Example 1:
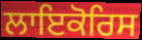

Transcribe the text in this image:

ਲਾਇਕੋਰਿਸ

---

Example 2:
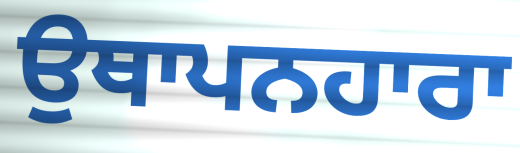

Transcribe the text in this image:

ਉਥਾਪਨਹਾਰਾ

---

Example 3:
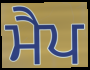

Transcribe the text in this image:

ਮੈਪ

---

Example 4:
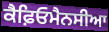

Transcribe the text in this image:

ਕੈਫ਼ਿਓਮੈਨਸੀਆ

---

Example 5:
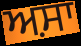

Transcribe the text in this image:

ਅ਼ਸਾ